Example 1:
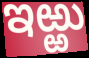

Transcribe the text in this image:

ఇఱ్ఱు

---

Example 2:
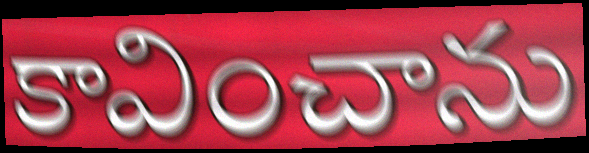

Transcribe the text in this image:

కావించాను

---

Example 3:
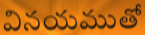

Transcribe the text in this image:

వినయముతో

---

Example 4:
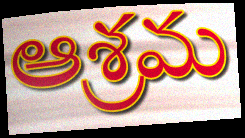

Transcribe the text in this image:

ఆశ్రమ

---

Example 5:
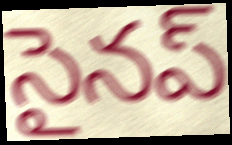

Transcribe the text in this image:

సైనప్